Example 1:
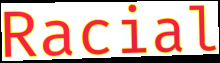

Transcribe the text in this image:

Racial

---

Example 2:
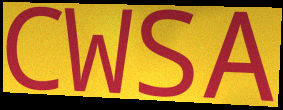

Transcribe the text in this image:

CWSA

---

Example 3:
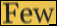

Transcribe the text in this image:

Few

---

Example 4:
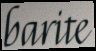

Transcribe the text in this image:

barite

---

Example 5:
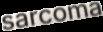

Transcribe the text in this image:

sarcoma